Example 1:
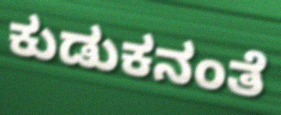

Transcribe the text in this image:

ಕುಡುಕನಂತೆ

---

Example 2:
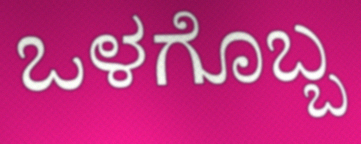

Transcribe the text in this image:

ಒಳಗೊಬ್ಬ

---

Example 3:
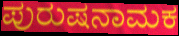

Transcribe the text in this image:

ಪುರುಷನಾಮಕ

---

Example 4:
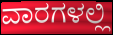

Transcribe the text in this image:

ವಾರಗಳಲ್ಲಿ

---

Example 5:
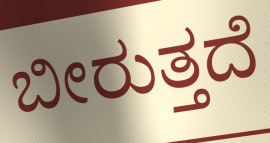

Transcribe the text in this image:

ಬೀರುತ್ತದೆ